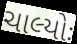
ચાલ્યોઃ